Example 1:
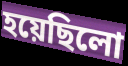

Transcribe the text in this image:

হয়েছিলো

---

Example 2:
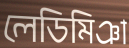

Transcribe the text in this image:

লেডিমিঞা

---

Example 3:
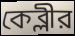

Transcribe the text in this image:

কেব্লীর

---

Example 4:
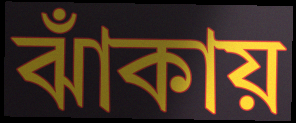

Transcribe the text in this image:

ঝাঁকায়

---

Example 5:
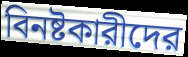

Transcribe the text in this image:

বিনষ্টকারীদের